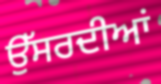
ਉੱਸਰਦੀਆਂ